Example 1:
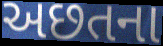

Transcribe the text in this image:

અછતના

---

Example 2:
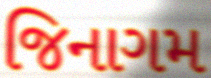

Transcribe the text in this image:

જિનાગમ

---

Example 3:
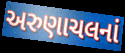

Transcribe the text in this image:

અરુણાચલનાં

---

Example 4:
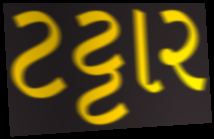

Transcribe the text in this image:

ટટ્ટાર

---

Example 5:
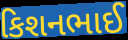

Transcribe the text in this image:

કિશનભાઈ